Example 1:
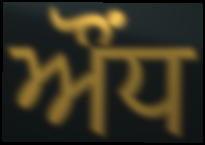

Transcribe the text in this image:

ਔਂਧ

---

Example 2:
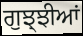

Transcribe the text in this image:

ਗੁਝ੍ਝੀਆਂ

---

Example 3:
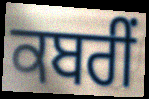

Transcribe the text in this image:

ਕਬਰੀਂ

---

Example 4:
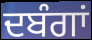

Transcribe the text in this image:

ਦਬੰਗਾਂ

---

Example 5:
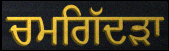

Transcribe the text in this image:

ਚਮਗਿੱਦੜਾ